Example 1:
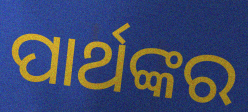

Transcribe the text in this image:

ପାର୍ଥଙ୍କର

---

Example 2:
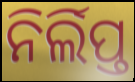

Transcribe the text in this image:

ନିର୍ଲିପ୍ତ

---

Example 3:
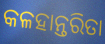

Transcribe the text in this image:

କଳହାନ୍ତରିତା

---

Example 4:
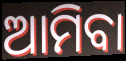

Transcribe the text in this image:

ଆମିବା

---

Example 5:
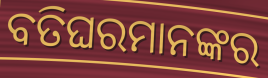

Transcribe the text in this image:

ବତିଘରମାନଙ୍କର